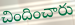
చిందించారు